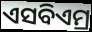
ଏସବିଏମ୍ର